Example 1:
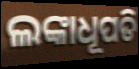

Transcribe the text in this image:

ଲଙ୍କାଧୂପତି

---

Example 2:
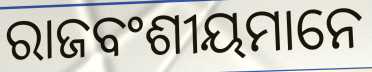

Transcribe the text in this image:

ରାଜବଂଶୀୟମାନେ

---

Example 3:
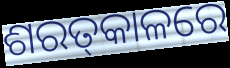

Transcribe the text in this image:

ଶରତ୍‌କାଳରେ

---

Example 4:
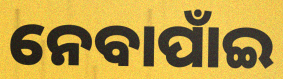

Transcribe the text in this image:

ନେବାପାଁଇ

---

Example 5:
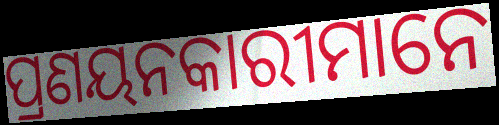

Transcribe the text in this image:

ପ୍ରଣୟନକାରୀମାନେ